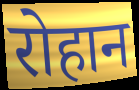
रोहान